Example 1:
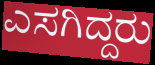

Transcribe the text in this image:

ಎಸಗಿದ್ದರು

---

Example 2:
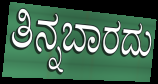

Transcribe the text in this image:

ತಿನ್ನಬಾರದು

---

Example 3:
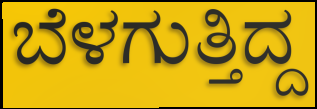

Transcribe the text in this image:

ಬೆಳಗುತ್ತಿದ್ದ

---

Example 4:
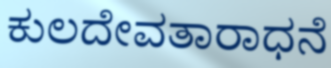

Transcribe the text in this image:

ಕುಲದೇವತಾರಾಧನೆ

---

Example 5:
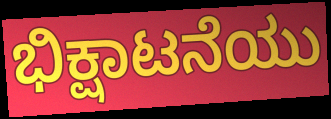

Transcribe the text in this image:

ಭಿಕ್ಷಾಟನೆಯು